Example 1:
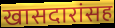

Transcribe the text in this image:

खासदारांसह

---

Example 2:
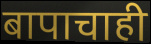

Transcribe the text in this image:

बापाचाही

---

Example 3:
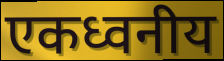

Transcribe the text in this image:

एकध्वनीय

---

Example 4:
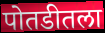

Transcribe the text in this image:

पोतडीतला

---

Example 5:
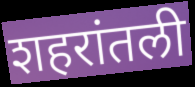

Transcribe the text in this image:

शहरांतली